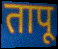
तापू